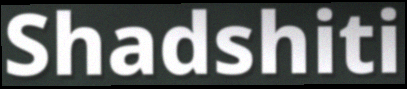
Shadshiti